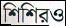
শিশিরও